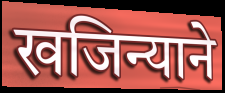
खजिन्याने